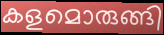
കളമൊരുങ്ങി